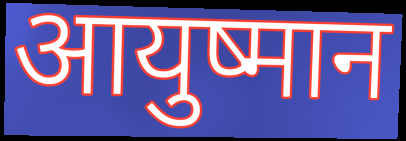
आयुष्मान